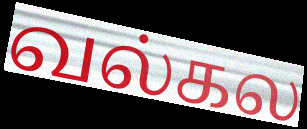
வல்கல